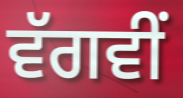
ਵੱਗਵੀਂ